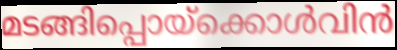
മടങ്ങിപ്പൊയ്ക്കൊൾവിൻ